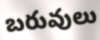
బరువులు